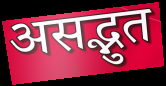
असद्भुत